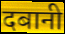
दबानी